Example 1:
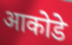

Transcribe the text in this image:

आकोडे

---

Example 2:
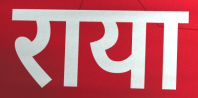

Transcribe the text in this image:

राया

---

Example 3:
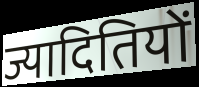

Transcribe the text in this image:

ज्यादितियों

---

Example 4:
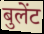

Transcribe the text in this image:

बुलेंट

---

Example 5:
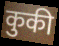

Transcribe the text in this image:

कुकी